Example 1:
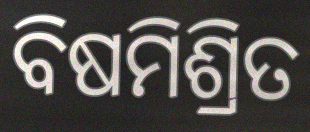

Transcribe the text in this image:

ବିଷମିଶ୍ରିତ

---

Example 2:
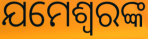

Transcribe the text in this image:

ଯମେଶ୍ୱରଙ୍କ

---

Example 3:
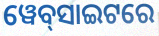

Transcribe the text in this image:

ୱେବ୍‍ସାଇଟରେ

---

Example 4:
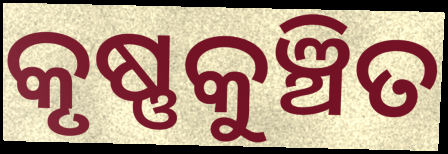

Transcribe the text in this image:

କୃଷ୍ଣକୁଞ୍ଚିତ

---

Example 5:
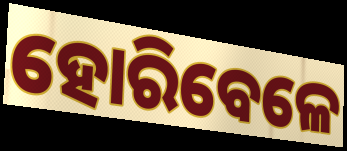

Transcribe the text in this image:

ହୋରିବେଳେ